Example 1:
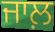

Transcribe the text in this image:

ਜਾਲ਼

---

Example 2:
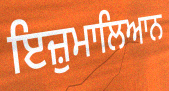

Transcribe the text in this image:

ਇਜ਼ੁਮਾਲਿਆਨ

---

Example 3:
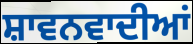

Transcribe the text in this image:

ਸ਼ਾਵਨਵਾਦੀਆਂ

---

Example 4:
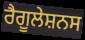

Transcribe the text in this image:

ਰੈਗੂਲੇਸ਼ਨਸ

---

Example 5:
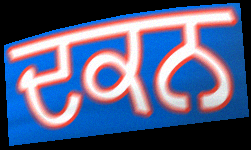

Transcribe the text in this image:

ਦਕਨ